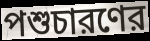
পশুচারণের